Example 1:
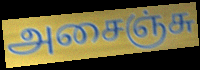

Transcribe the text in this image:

அசைஞ்சு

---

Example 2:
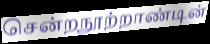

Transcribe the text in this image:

சென்றநூற்றாண்டின்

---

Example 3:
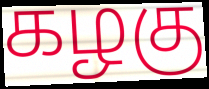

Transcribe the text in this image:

கழகு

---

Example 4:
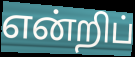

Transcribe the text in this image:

என்றிப்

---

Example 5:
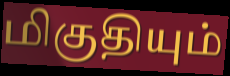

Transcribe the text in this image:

மிகுதியும்